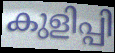
കുളിപ്പി